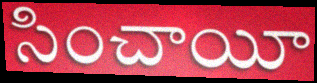
సించాయీ